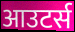
आउटर्स